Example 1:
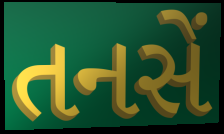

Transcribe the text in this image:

તનસેં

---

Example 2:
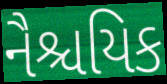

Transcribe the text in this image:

નૈશ્ચયિક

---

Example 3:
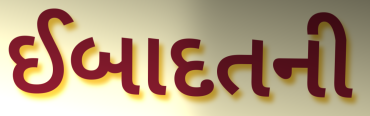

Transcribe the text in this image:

ઈબાદતની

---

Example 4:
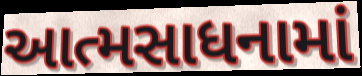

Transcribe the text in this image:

આત્મસાધનામાં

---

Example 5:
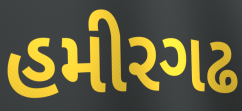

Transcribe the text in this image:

હમીરગઢ